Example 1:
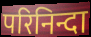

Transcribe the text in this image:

परिनिन्दा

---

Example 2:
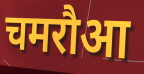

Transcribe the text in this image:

चमरौआ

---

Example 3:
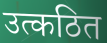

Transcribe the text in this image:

उत्कठित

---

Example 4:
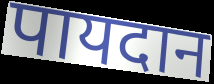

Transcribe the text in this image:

पायदान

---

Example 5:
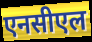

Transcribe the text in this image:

एनसीएल